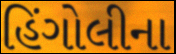
હિંગોલીના